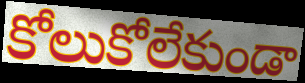
కోలుకోలేకుండా